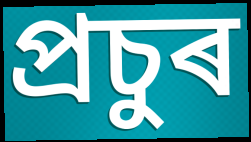
প্ৰচুৰ